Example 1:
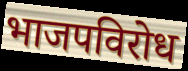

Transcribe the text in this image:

भाजपविरोध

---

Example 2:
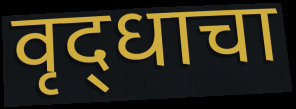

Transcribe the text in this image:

वृद्धाचा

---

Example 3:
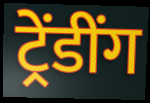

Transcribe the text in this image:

ट्रेंडींग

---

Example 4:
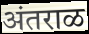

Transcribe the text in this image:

अंतराळ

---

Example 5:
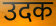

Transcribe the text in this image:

उदक